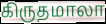
கிருதமாலா